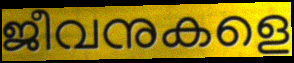
ജീവനുകളെ